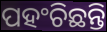
ପହଂଚିଛନ୍ତି